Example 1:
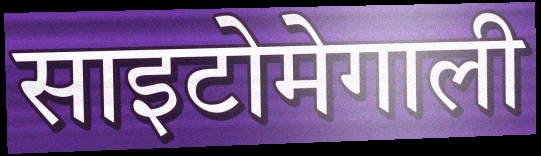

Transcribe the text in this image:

साइटोमेगाली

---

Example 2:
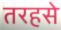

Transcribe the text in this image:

तरहसे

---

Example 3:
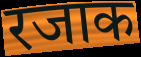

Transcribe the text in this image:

रजाक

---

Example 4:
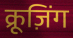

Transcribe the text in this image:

क्रूज़िंग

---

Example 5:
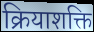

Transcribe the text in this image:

क्रियाशक्ति